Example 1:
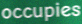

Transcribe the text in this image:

occupies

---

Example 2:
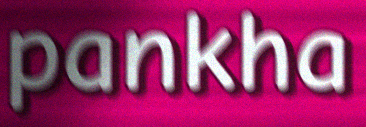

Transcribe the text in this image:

pankha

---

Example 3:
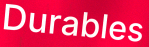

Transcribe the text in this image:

Durables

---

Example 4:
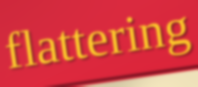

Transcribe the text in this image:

flattering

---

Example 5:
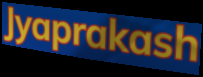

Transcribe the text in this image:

Jyaprakash